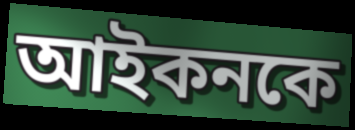
আইকনকে